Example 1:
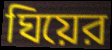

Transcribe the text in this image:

ঘিয়ের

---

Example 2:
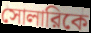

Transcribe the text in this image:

সোলারিকে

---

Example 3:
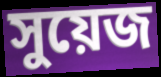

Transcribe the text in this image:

সুয়েজ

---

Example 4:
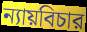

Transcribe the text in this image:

ন্যায়বিচার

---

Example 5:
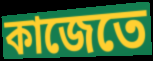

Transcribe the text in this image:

কাজেতে